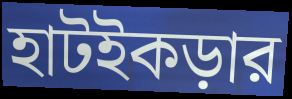
হাটইকড়ার